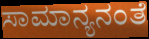
ಸಾಮಾನ್ಯನಂತೆ